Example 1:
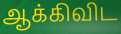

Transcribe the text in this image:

ஆக்கிவிட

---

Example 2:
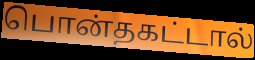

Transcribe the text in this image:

பொன்தகட்டால்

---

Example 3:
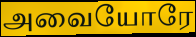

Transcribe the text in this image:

அவையோரே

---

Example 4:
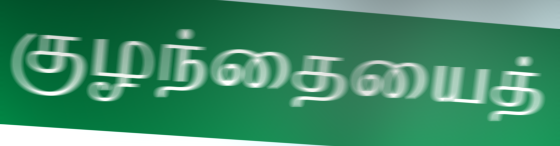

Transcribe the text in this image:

குழந்தையைத்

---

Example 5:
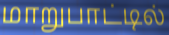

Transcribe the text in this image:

மாறுபாட்டில்